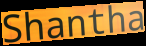
Shantha